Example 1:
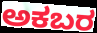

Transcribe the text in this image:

ಅಕಬರ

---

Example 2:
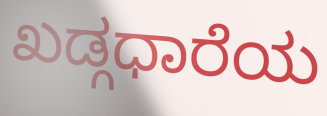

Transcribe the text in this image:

ಖಡ್ಗಧಾರೆಯ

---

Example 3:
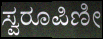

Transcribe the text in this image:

ಸ್ವರೂಪಿಣೀ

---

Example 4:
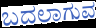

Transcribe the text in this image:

ಬದಲಾಗುವ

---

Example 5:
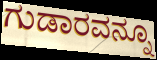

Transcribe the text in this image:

ಗುಡಾರವನ್ನೂ